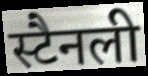
स्टैनली